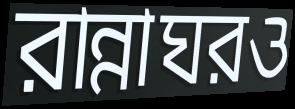
রান্নাঘরও